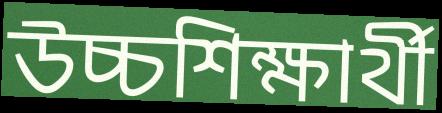
উচ্চশিক্ষার্থী